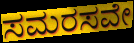
ಸಮರಸವೇ